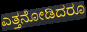
ಎತ್ತನೋಡಿದರೂ